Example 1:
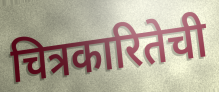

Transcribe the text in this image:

चित्रकारितेची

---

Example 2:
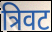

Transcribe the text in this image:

त्रिवट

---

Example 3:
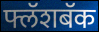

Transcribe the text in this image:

फ्लॅशबॅक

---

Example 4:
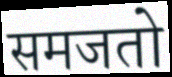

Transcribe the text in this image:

समजतो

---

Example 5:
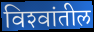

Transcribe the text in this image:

विश्वांतील